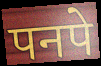
पनपे